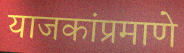
याजकांप्रमाणे